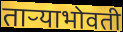
ताऱ्याभोवती